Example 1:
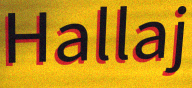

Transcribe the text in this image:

Hallaj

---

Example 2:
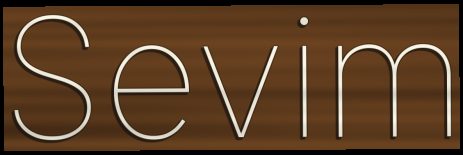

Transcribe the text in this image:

Sevim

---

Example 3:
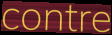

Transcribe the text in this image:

contre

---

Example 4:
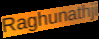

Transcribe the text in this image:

Raghunathji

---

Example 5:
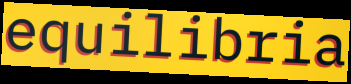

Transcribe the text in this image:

equilibria